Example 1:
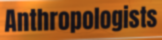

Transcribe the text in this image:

Anthropologists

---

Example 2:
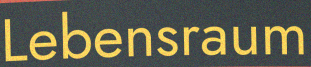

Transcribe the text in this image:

Lebensraum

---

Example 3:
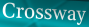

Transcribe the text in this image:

Crossway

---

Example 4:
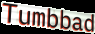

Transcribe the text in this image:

Tumbbad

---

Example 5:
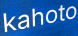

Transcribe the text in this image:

kahoto